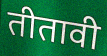
तीतावी